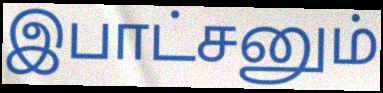
இபாட்சனும்